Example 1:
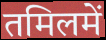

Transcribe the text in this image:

तमिलमें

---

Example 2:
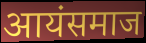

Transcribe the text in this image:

आयंसमाज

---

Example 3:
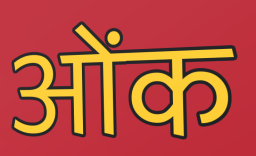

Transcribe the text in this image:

ओंक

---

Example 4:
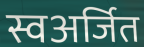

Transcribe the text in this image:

स्वअर्जित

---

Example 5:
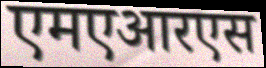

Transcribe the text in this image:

एमएआरएस